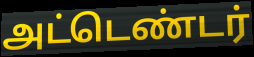
அட்டெண்டர்